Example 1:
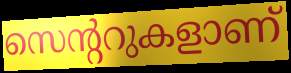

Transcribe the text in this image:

സെന്ററുകളാണ്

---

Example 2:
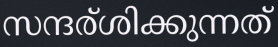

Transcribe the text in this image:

സന്ദര്ശിക്കുന്നത്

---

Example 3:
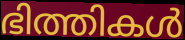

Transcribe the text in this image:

ഭിത്തികൾ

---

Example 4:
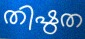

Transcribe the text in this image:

തിഷ്ഠത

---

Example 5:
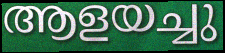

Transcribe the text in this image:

ആളയച്ചു